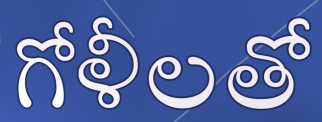
గోళీలతో